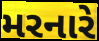
મરનારે